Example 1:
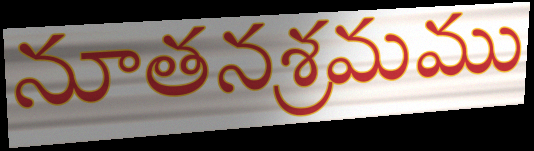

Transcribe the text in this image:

నూతనశ్రమము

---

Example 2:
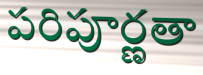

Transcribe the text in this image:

పరిపూర్ణతా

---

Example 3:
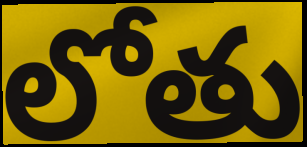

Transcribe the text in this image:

లోతు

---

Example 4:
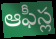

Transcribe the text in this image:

ఆఫీస్ల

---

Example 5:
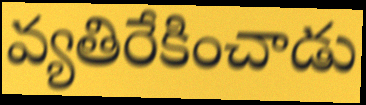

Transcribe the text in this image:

వ్యతిరేకించాడు